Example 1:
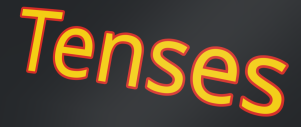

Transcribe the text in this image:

Tenses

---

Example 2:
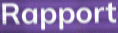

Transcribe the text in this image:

Rapport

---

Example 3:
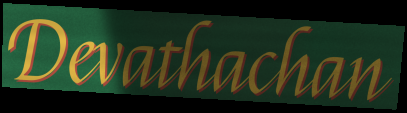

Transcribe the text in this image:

Devathachan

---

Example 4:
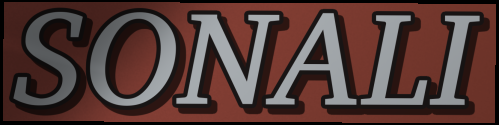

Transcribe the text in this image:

SONALI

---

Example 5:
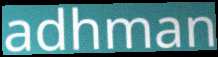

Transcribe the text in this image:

adhman